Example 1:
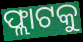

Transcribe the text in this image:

ଫ୍ଲାଟକୁ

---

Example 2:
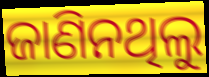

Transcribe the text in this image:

ଜାଣିନଥିଲୁ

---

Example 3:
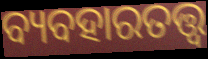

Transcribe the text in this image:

ବ୍ୟବହାରତତ୍ତ୍ବ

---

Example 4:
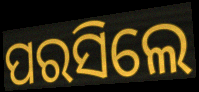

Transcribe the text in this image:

ପରସିଲେ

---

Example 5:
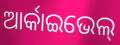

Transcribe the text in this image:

ଆର୍କାଇଭେଲ୍